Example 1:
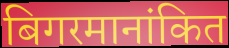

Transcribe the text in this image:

बिगरमानांकित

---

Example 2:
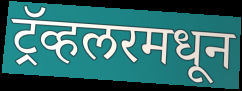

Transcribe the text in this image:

ट्रॅव्हलरमधून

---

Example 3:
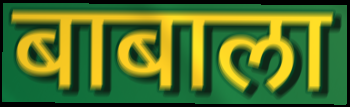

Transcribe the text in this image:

बाबाला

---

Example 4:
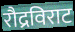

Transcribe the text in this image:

रौद्रविराट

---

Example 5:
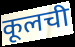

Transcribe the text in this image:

कूलची